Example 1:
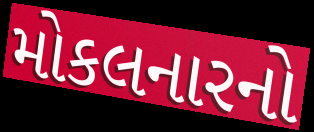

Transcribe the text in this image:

મોકલનારનો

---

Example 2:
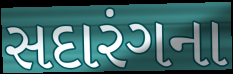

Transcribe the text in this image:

સદારંગના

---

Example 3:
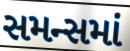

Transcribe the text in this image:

સમન્સમાં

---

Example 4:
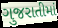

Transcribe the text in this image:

ગુજરાતીમાં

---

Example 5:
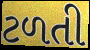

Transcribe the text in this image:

ટળતી